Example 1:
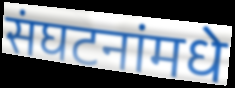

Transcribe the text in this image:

संघटनांमधे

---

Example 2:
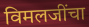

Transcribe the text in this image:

विमलजींचा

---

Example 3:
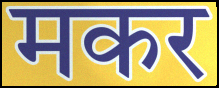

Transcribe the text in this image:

मकर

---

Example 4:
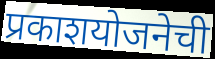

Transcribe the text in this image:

प्रकाशयोजनेची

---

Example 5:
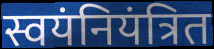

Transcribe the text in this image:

स्वयंनियंत्रित